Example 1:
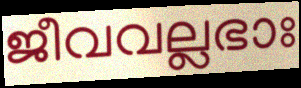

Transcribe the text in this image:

ജീവവല്ലഭാഃ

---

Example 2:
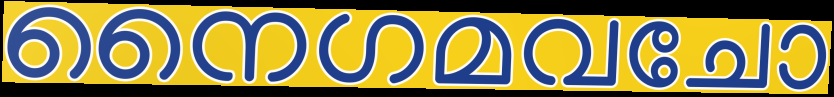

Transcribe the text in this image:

നൈഗമവചോ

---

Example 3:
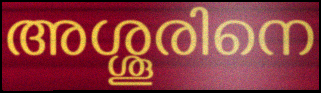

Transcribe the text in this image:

അശ്ശൂരിനെ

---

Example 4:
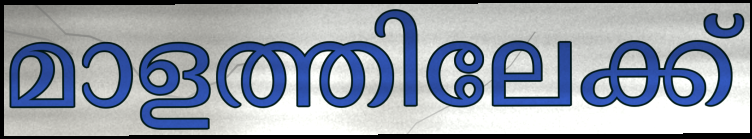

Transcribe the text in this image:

മാളത്തിലേക്ക്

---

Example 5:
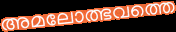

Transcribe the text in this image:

അമലോത്ഭവത്തെ